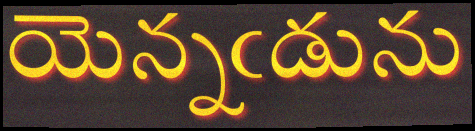
యెన్నఁడును